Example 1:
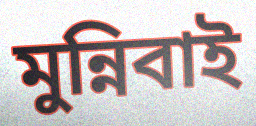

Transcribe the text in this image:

মুন্নিবাই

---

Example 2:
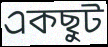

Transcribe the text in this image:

একছুট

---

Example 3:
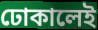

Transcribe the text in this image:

ঢোকালেই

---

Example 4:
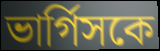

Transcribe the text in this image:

ভার্গিসকে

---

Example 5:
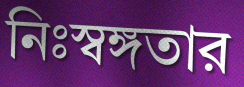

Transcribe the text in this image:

নিঃস্বঙ্গতার